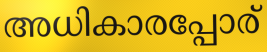
അധികാരപ്പോര്